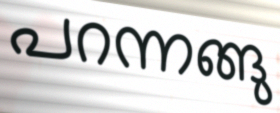
പറന്നങ്ങു